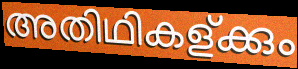
അതിഥികള്ക്കും